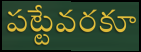
పట్టేవరకూ